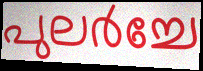
പുലർച്ചേ